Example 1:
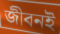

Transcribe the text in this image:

জীবনই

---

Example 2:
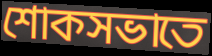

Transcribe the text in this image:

শোকসভাতে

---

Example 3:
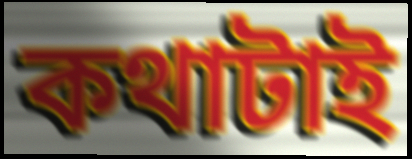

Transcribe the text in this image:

কথাটাই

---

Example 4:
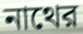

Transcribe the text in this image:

নাথের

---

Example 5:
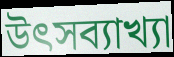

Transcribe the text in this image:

উৎসব্যাখ্যা